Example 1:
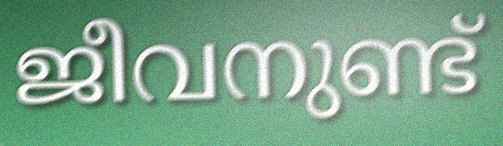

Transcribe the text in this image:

ജീവനുണ്ട്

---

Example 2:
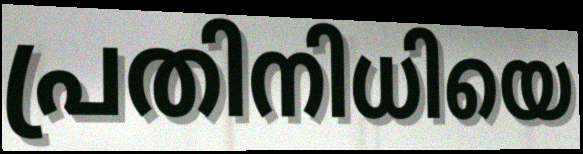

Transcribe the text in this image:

പ്രതിനിധിയെ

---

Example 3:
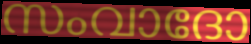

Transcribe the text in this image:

സംവാദോ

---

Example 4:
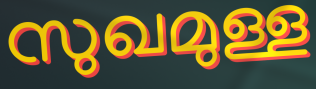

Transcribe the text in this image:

സുഖമുള്ള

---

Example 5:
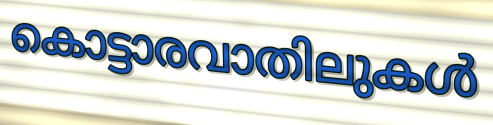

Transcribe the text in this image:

കൊട്ടാരവാതിലുകൾ